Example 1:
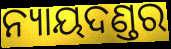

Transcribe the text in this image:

ନ୍ୟାୟଦଣ୍ଡର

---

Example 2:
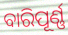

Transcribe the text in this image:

ବାରିପୂର୍ଣ୍ଣ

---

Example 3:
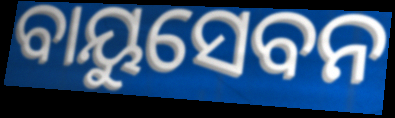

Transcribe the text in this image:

ବାୟୁସେବନ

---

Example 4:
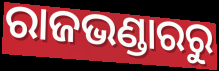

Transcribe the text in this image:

ରାଜଭଣ୍ଡାରରୁ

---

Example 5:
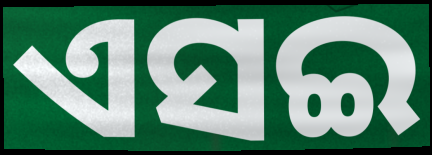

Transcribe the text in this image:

ଏସଇ